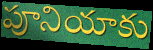
పూనియాకు